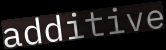
additive